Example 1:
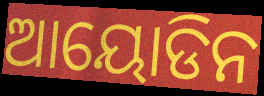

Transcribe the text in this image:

ଆୟୋଡିନ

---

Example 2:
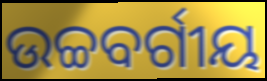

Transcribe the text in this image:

ଉଚ୍ଚବର୍ଗୀୟ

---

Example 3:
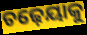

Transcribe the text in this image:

ଚଢ଼େୟାକୁ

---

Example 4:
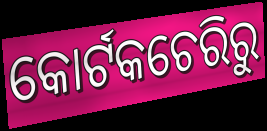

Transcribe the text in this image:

କୋର୍ଟକଚେରିରୁ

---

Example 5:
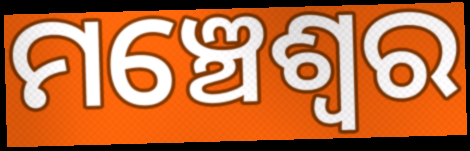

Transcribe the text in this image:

ମଞ୍ଚେଶ୍ଵର